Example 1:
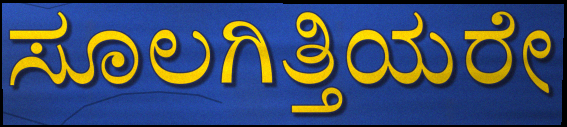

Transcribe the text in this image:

ಸೂಲಗಿತ್ತಿಯರೇ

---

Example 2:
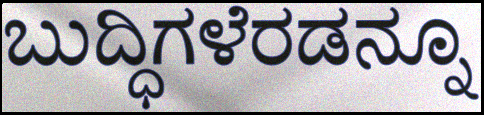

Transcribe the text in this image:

ಬುದ್ಧಿಗಳೆರಡನ್ನೂ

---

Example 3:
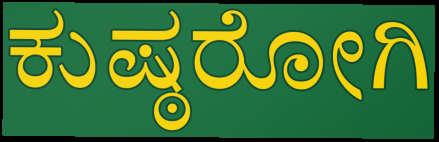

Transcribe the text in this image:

ಕುಷ್ಠರೋಗಿ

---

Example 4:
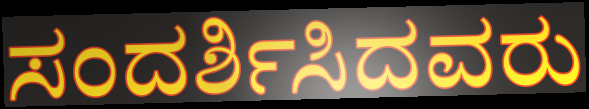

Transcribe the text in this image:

ಸಂದರ್ಶಿಸಿದವರು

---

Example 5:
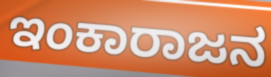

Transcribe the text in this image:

ಇಂಕಾರಾಜನ